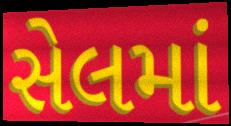
સેલમાં